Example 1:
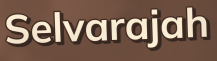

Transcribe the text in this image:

Selvarajah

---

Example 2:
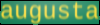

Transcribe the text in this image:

augusta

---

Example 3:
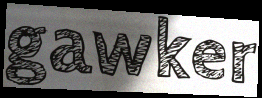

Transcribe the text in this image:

gawker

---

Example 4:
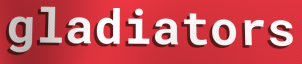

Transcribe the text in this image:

gladiators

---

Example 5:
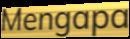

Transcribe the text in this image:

Mengapa